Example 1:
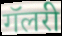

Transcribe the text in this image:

गॅलरी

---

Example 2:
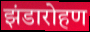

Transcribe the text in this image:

झंडारोहण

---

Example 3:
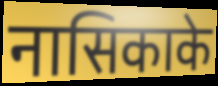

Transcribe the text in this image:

नासिकाके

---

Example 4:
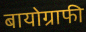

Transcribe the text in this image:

बायोग्राफी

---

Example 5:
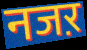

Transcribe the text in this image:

नजऱ